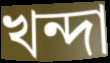
খন্দা